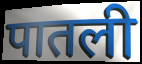
पातली